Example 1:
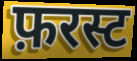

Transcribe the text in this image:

फ़रस्ट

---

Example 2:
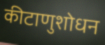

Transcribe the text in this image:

कीटाणुशोधन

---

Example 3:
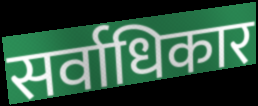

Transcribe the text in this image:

सर्वाधिकार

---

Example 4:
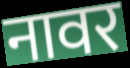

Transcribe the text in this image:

नावर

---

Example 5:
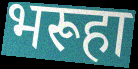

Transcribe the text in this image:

भरूहा